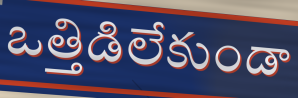
ఒత్తిడిలేకుండా